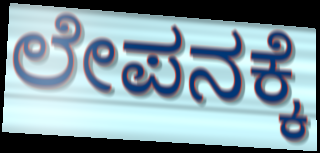
ಲೇಪನಕ್ಕೆ